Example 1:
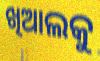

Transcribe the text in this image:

ଖିଆଲକୁ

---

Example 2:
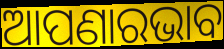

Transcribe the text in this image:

ଆପଣାରଭାବ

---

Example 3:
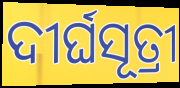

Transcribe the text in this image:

ଦୀର୍ଘସୂତ୍ରୀ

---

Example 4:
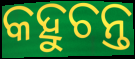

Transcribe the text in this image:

କହୁଚନ୍ତ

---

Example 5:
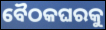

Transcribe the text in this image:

ବୈଠକଘରକୁ